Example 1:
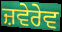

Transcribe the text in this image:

ਜ਼ਵੇਰੇਵ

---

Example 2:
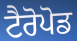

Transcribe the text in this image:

ਟੈਰੋਪੋਡ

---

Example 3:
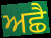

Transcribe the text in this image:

ਅਛੈ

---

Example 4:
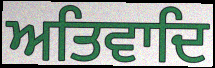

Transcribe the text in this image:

ਅਤਿਵਾਦਿ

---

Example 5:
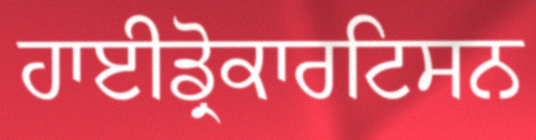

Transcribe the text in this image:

ਹਾਈਡ੍ਰੋਕਾਰਟਿਸਨ